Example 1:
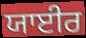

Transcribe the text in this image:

ਯਾਈਰ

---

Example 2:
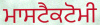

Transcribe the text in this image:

ਮਾਸਟੈਕਟੋਮੀ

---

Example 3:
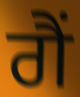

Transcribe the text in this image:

ਗੈਂ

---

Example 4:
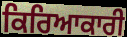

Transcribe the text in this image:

ਕਿਰਿਆਕਾਰੀ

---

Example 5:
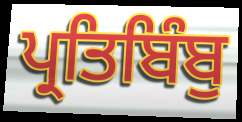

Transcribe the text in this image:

ਪ੍ਰਤਿਬਿੰਬੁ